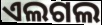
ଏଲଗଲ